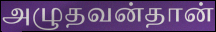
அழுதவன்தான்